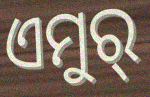
ଏମୁର୍